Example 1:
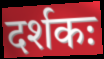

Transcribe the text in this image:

दर्शकः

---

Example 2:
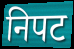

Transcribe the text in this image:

निपट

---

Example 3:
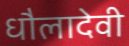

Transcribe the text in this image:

धौलादेवी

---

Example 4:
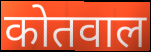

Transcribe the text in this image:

कोतवाल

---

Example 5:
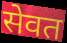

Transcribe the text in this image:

सेवत